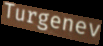
Turgenev